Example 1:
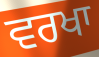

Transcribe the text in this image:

ਵਰਖਾ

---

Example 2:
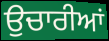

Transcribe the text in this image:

ਉਚਾਰੀਆਂ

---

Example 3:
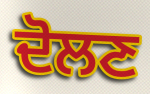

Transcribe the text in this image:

ਦੋਲਣ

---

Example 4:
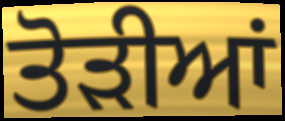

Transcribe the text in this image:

ਤੋਡ਼ੀਆਂ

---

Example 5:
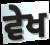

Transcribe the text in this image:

ਵੇਖ